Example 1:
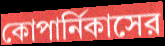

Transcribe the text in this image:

কোপার্নিকাসের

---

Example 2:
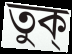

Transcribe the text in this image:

তুক্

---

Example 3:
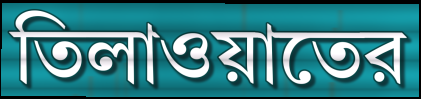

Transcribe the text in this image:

তিলাওয়াতের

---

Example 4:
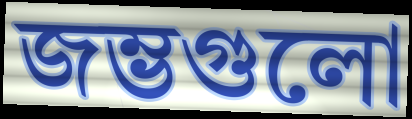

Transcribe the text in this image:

জম্ভগুলো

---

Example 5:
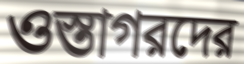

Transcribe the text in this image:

ওস্তাগরদের